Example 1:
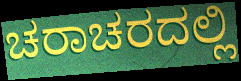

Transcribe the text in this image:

ಚರಾಚರದಲ್ಲಿ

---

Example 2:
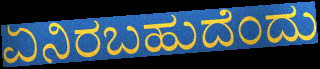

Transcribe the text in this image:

ಏನಿರಬಹುದೆಂದು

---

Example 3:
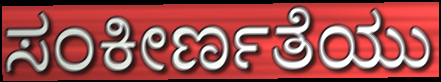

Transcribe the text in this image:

ಸಂಕೀರ್ಣತೆಯು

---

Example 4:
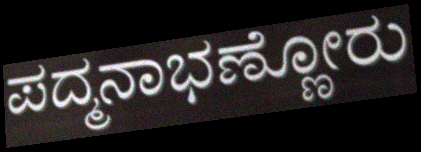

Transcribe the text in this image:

ಪದ್ಮನಾಭಣ್ಣೋರು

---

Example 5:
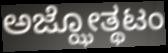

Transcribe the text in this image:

ಅಜ್ಝೋತ್ಥಟಂ